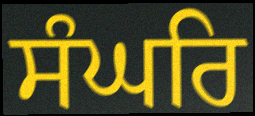
ਸੰਘਰਿ